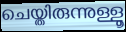
ചെയ്തിരുന്നുള്ളൂ